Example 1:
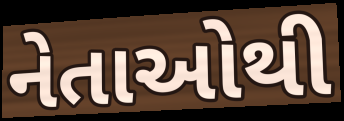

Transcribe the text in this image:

નેતાઓથી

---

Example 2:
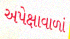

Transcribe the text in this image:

અપેક્ષાવાળાં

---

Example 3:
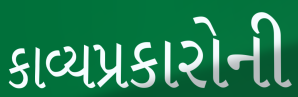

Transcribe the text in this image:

કાવ્યપ્રકારોની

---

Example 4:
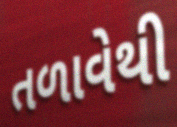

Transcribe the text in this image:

તળાવેથી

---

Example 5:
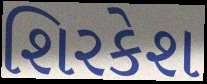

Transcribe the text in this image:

શિરકેશ